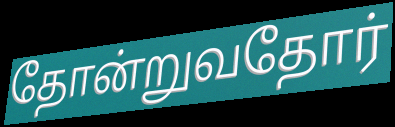
தோன்றுவதோர்